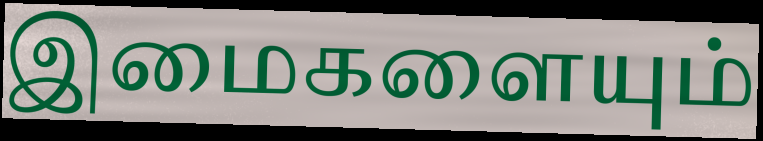
இமைகளையும்